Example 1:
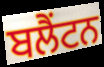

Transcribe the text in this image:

ਬਲੈਂਟਨ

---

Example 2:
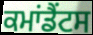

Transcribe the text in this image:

ਕਮਾਂਡੈਂਟਸ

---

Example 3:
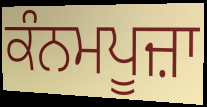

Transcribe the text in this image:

ਕੰਨਮਪੂਜ਼ਾ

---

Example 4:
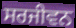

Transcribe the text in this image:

ਸਰਜੀਵਨ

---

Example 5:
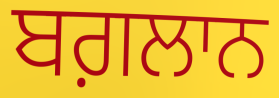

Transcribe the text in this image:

ਬਗ਼ਲਾਨ